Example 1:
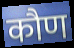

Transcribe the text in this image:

कौण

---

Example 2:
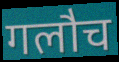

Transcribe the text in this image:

गलौच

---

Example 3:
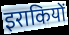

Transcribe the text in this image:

इराकियों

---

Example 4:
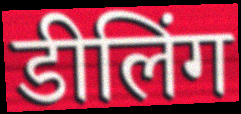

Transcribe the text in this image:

डीलिंग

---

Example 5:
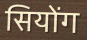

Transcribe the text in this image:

सियोंग